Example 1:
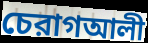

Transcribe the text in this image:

চেরাগআলী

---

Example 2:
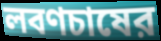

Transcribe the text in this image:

লবণচাষের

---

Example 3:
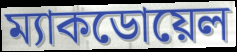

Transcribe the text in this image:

ম্যাকডোয়েল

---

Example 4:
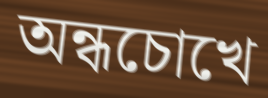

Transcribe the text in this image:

অন্ধচোখে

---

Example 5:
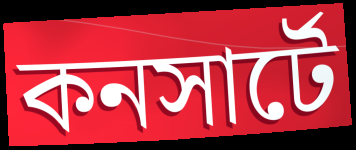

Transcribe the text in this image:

কনসার্টে